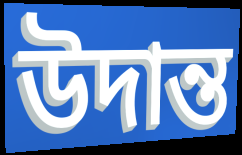
উদান্ত